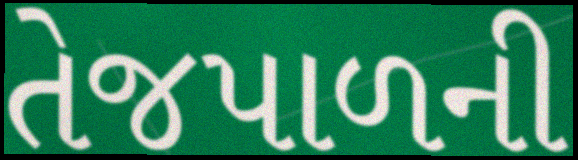
તેજપાળની